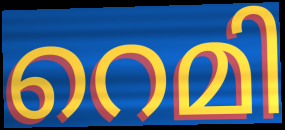
റെമി